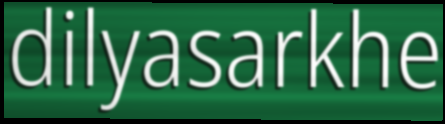
dilyasarkhe